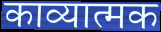
काव्यात्मक